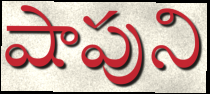
షాపుని